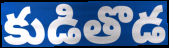
కుడితొడ